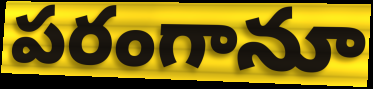
పరంగానూ